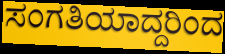
ಸಂಗತಿಯಾದ್ದರಿಂದ